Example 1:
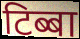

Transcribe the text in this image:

टिब्बा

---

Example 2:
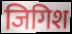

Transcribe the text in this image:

जिगिश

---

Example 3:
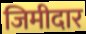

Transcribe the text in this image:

जिमीदार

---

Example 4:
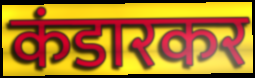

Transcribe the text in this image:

कंडारकर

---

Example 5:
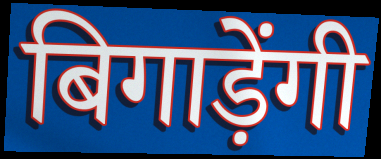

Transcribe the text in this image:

बिगाड़ेंगी